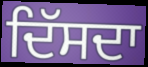
ਦਿੱਸਦਾ